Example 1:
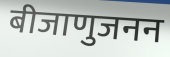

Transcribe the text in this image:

बीजाणुजनन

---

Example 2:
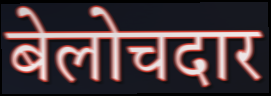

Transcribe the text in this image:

बेलोचदार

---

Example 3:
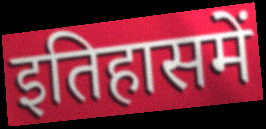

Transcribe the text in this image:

इतिहासमें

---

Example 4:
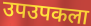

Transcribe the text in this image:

उपउपकला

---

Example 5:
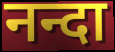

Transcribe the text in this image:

नन्दा